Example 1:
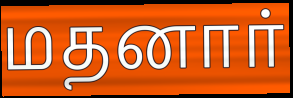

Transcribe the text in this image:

மதனார்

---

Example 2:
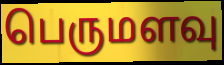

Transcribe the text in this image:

பெருமளவு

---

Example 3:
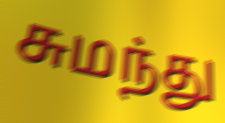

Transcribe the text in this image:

சுமந்து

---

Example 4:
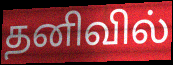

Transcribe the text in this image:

தனிவில்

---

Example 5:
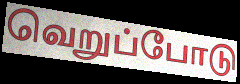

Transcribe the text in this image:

வெறுப்போடு